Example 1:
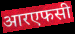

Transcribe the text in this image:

आरएफसी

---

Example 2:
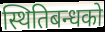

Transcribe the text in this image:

स्थितिबन्धको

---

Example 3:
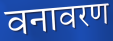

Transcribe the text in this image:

वनावरण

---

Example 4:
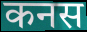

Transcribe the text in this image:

कनस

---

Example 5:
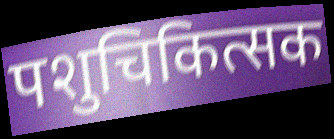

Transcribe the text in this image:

पशुचिकित्सक